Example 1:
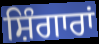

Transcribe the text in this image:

ਸ਼ਿੰਗਾਰਾਂ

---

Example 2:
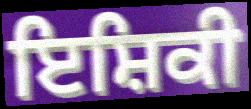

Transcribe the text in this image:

ਇਸ਼ਿਕੀ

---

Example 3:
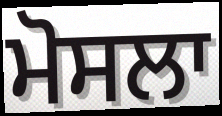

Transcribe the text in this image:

ਮੋਸਲਾ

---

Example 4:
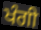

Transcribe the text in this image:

ਖੰਗੀ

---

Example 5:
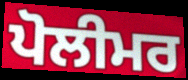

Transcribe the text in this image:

ਪੋਲੀਮਰ